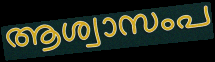
ആശ്വാസംപ